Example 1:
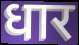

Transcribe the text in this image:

धार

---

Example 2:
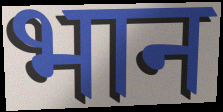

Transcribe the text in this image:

भान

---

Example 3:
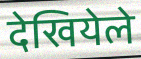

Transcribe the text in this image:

देखियेले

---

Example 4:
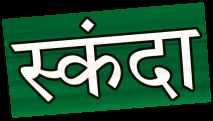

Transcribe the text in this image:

स्कंदा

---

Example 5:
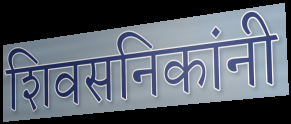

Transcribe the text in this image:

शिवसनिकांनी